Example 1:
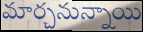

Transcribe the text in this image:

మార్చనున్నాయి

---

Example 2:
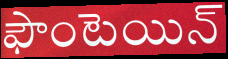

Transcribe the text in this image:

ఫౌంటెయిన్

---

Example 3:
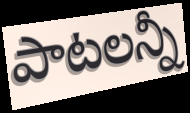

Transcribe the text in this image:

పాటలన్నీ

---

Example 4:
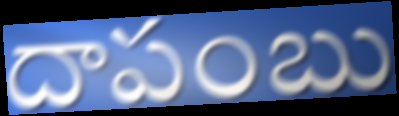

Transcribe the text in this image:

దాపంబు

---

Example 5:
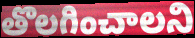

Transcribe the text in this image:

తొలగించాలని